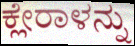
ಕ್ಲೇರಾಳನ್ನು